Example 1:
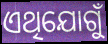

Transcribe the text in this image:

ଏଥିଯୋଗୁଁ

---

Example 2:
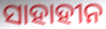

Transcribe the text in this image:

ସାହାହୀନ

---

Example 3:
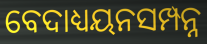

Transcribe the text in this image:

ବେଦାଧ୍ୟୟନସମ୍ପନ୍ନ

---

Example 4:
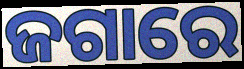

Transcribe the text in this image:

ଜଗାରେ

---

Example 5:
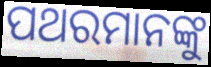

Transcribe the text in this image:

ପଥରମାନଙ୍କୁ